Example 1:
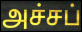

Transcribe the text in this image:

அச்சப்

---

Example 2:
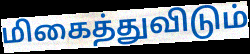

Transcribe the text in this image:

மிகைத்துவிடும்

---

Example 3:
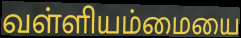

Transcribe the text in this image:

வள்ளியம்மையை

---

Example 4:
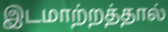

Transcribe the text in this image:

இடமாற்றத்தால்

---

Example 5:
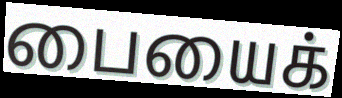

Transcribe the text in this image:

பையைக்